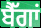
ਬੈੱਗਾਂ